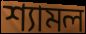
শ্যামল